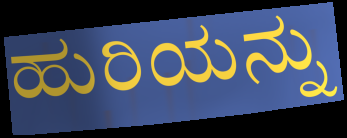
ಹುರಿಯನ್ನು